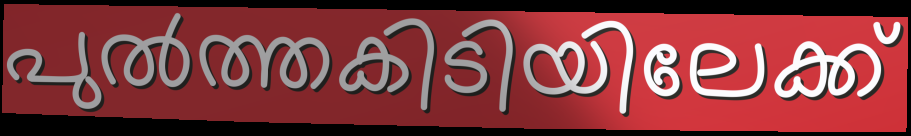
പുൽത്തകിടിയിലേക്ക്